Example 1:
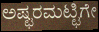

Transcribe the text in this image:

ಅಷ್ಟರಮಟ್ಟಿಗೇ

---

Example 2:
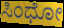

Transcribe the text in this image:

ಸಿಂಧೋ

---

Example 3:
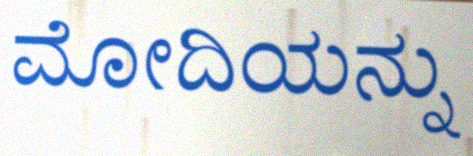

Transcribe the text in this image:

ಮೋದಿಯನ್ನು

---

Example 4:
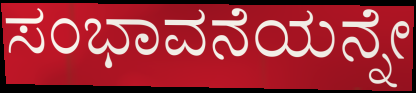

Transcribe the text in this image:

ಸಂಭಾವನೆಯನ್ನೇ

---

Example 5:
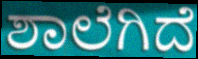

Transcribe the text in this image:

ಶಾಲೆಗಿದೆ